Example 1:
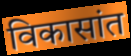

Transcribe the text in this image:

विकासांत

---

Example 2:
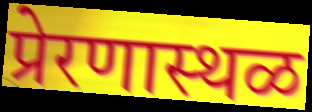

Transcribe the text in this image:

प्रेरणास्थळ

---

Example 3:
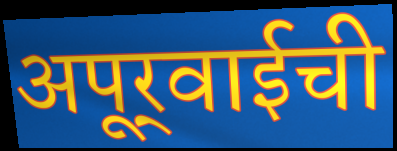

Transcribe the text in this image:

अपूर्वाईची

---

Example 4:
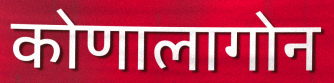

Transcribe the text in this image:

कोणालागोन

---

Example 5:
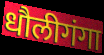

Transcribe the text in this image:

धौलीगंगा